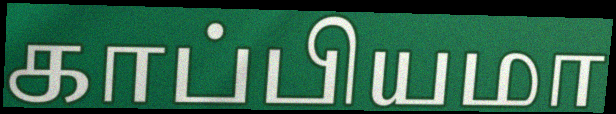
காப்பியமா